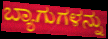
ಬ್ಯಾಗುಗಳನ್ನು